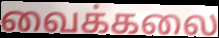
வைக்கலை